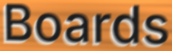
Boards